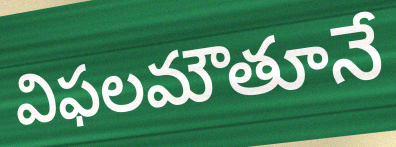
విఫలమౌతూనే